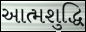
આત્મશુદ્ધિ